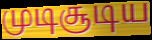
முடிசூடிய